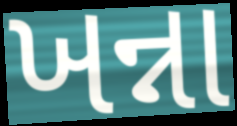
ખન્ના